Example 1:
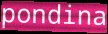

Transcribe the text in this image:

pondina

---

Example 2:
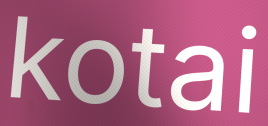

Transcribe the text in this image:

kotai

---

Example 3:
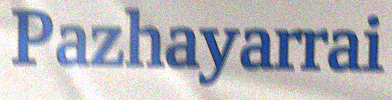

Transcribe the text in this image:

Pazhayarrai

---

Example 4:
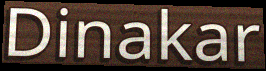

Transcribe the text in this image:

Dinakar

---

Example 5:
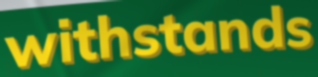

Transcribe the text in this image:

withstands